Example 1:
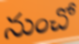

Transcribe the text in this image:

నుంచో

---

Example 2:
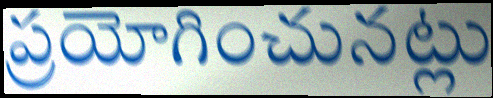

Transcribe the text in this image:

ప్రయోగించునట్లు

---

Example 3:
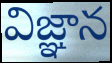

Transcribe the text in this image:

విజ్ఞాన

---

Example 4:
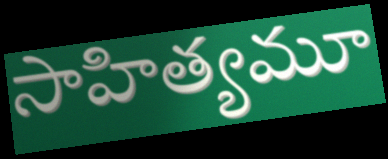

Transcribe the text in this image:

సాహిత్యమూ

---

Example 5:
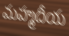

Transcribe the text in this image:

మహ్మదీయ